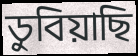
ডুবিয়াছি